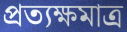
প্রত্যক্ষমাত্র